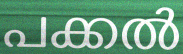
പക്കൽ